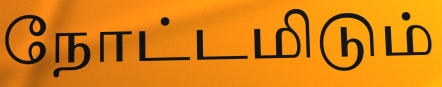
நோட்டமிடும்